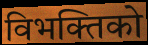
विभक्तिको